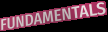
FUNDAMENTALS